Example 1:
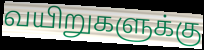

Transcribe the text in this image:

வயிறுகளுக்கு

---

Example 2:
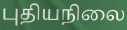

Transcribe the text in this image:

புதியநிலை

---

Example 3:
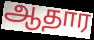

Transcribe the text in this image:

ஆதார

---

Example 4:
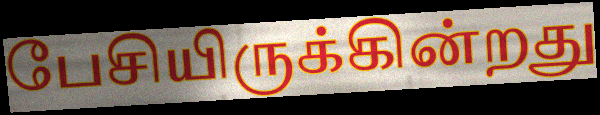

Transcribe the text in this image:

பேசியிருக்கின்றது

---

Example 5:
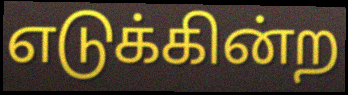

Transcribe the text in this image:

எடுக்கின்ற